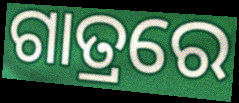
ଗାତ୍ରରେ